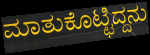
ಮಾತುಕೊಟ್ಟಿದ್ದನು